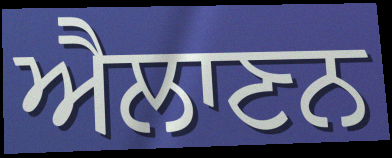
ਐਲਾਣਨ